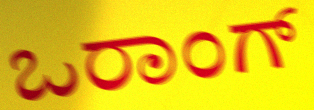
ಒರಾಂಗ್